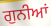
ਗੁਨੀਆਂ